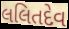
લલિતદેવ